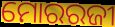
ମୋରରଜୀ